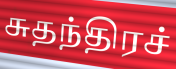
சுதந்திரச்